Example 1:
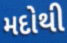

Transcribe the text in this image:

મદોથી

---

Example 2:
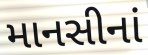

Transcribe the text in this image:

માનસીનાં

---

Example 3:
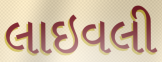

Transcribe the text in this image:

લાઇવલી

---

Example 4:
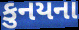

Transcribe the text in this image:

કુનયના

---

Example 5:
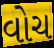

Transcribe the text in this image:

વોચ